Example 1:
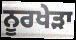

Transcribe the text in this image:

ਨੂਰਖੇੜਾ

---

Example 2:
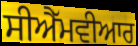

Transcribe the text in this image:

ਸੀਐੱਮਵੀਆਰ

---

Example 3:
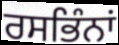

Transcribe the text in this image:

ਰਸਭਿੰਨਾਂ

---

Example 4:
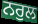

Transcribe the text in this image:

ਨਰੁਲ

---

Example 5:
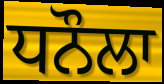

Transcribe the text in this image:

ਧਨੌਲਾ